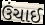
ઉંચાઈ